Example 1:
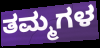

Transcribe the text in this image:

ತಮ್ಮಗಳ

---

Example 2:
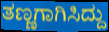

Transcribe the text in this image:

ತಣ್ಣಗಾಗಿಸಿದ್ದು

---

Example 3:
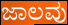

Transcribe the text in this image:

ಜಾಲವು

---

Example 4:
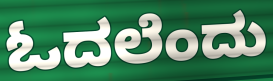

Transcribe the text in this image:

ಓದಲೆಂದು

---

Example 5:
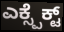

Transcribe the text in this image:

ಎಕ್ಸ್ಪೆಕ್ಟ್